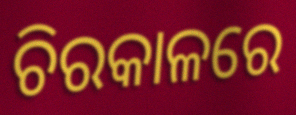
ଚିରକାଳରେ